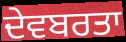
ਦੇਵਬਰਤਾ